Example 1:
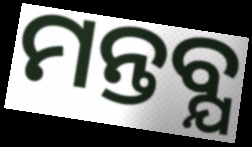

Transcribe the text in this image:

ମନ୍ତବ୍ଯ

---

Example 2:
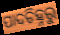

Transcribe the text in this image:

ପାଦଚିହ୍ନରୁ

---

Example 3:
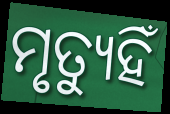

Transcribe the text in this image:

ମୃତ୍ୟୁହିଁ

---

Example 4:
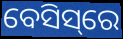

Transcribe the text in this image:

ବେସିସ୍‌ରେ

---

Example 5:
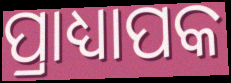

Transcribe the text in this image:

ପ୍ରାଧ୍ୟାପକ